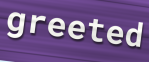
greeted